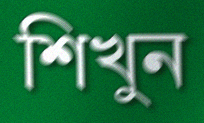
শিখুন